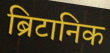
ब्रिटानिक